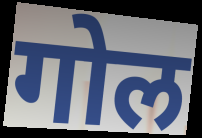
गोल